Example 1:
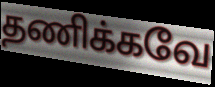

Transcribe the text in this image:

தணிக்கவே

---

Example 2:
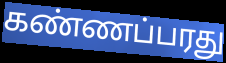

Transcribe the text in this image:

கண்ணப்பரது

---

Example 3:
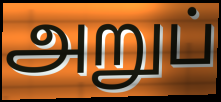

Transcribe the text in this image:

அறுப்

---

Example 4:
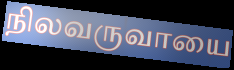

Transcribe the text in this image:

நிலவருவாயை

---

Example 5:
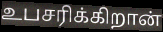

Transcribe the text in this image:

உபசரிக்கிறான்